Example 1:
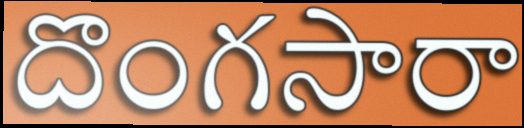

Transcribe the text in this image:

దొంగసారా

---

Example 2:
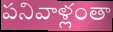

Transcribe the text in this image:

పనివాళ్లంతా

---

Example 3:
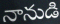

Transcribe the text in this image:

నానుడి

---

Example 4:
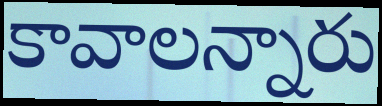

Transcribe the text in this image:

కావాలన్నారు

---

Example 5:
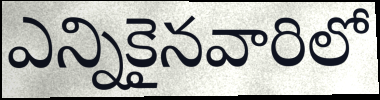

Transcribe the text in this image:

ఎన్నికైనవారిలో